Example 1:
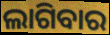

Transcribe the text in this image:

ଲାଗିବାର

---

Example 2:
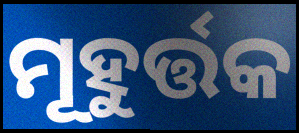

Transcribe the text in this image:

ମୂହୁର୍ତ୍ତକ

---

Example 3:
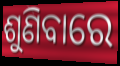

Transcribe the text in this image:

ଶୁଣିବାରେ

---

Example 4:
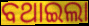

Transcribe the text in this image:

ବଥାଇଲା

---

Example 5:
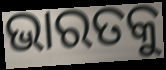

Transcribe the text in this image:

ଭାରତକୁ